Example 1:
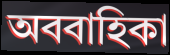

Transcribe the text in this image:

অববাহিকা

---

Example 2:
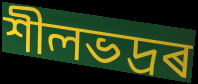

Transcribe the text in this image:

শীলভদ্ৰৰ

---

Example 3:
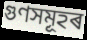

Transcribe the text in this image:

গুণসমূহৰ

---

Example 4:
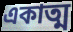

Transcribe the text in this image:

একাত্ম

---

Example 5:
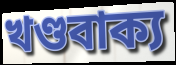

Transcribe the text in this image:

খণ্ডবাক্য